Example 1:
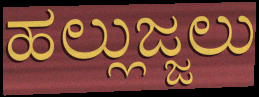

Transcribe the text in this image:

ಹಲ್ಲುಜ್ಜಲು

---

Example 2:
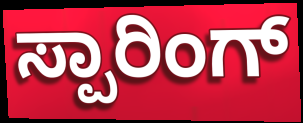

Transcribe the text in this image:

ಸ್ಪಾರಿಂಗ್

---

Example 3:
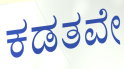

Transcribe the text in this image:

ಕಡತವೇ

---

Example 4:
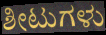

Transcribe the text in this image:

ಶೀಟುಗಳು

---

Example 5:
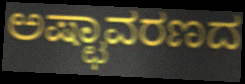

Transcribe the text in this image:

ಅಷ್ಟಾವರಣದ